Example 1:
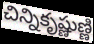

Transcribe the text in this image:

చిన్నికృష్ణుణ్ణి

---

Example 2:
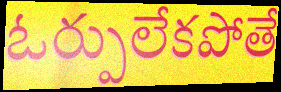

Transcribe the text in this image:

ఓర్పులేకపోతే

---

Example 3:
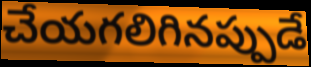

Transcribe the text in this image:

చేయగలిగినప్పుడే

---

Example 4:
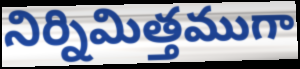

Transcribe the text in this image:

నిర్నిమిత్తముగా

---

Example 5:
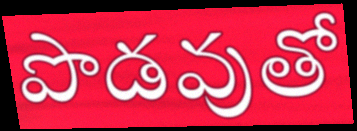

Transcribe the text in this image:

పొడవుతో